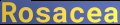
Rosacea